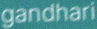
gandhari